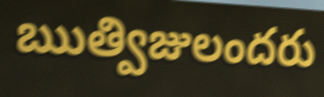
ఋత్విజులందరు